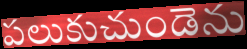
పలుకుచుండెను